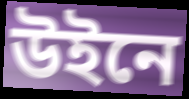
উইনে